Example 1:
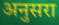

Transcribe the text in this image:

अनुसरा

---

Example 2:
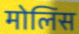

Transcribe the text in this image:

मोलिंस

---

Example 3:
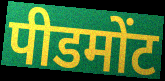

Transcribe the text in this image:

पीडमोंट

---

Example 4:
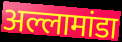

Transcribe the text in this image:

अल्लामांडा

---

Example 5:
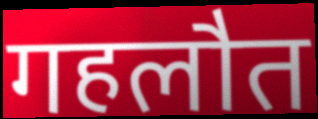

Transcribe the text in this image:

गहलौत